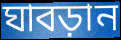
ঘাবড়ান